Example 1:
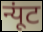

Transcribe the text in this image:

न्यूंट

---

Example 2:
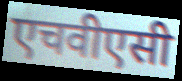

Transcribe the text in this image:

एचवीएसी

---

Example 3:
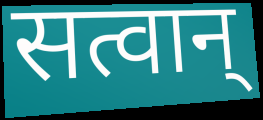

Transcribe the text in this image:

सत्वान्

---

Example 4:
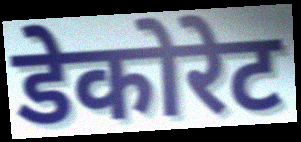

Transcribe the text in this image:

डेकोरेट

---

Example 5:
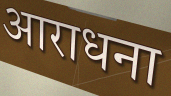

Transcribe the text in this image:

आराधना